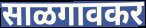
साळगावकर